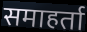
समाहर्ता